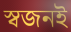
স্বজনই